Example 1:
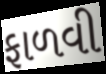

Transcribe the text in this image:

ફાળવી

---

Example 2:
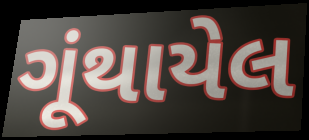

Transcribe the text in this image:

ગૂંથાયેલ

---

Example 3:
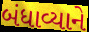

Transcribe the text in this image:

બંધાવ્યાને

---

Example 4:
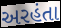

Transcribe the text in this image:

અરહંતા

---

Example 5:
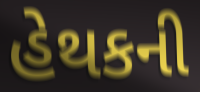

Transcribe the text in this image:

હેથકની